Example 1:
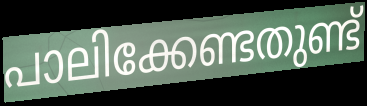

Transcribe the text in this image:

പാലിക്കേണ്ടതുണ്ട്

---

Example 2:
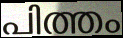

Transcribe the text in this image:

പിത്തം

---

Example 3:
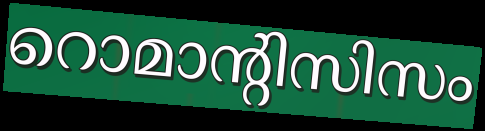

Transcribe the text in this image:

റൊമാന്റിസിസം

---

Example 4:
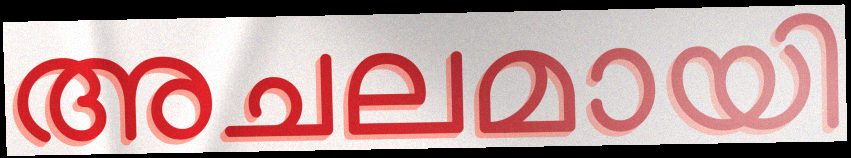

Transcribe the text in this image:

അചലമായി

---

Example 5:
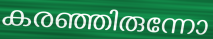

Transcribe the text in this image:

കരഞ്ഞിരുന്നോ